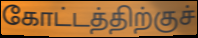
கோட்டத்திற்குச்